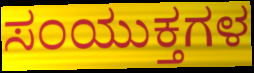
ಸಂಯುಕ್ತಗಳ